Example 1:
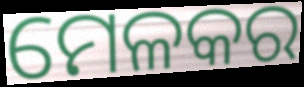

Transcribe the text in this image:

ମେଳକର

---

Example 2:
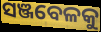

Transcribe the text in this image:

ସଞ୍ଜବେଳକୁ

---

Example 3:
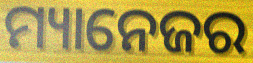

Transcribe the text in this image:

ମ୍ୟାନେଜର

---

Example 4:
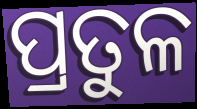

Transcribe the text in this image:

ପ୍ରତୁଳ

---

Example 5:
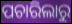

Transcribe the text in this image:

ପଚାରିଲାରୁ